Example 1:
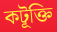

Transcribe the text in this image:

কটূক্তি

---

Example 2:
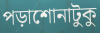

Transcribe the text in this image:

পড়াশোনাটুকু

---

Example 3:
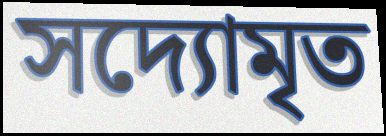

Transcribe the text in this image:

সদ্যোমৃত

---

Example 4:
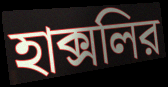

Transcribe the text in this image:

হাক্সলির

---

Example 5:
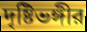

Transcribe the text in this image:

দৃষ্টিভঙ্গীর